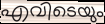
എവിടെയും